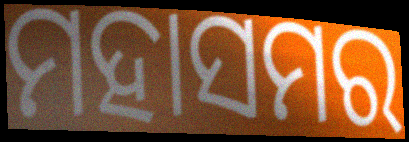
ମହାସମର